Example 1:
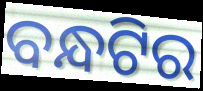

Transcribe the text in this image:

ବନ୍ଧଟିର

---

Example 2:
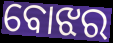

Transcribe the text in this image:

ବୋଝର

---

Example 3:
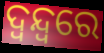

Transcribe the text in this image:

ଦ୍ୱନ୍ଦ୍ବରେ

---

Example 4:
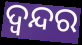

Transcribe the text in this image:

ଦ୍ବନ୍ଦର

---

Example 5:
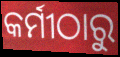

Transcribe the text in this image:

କର୍ମୀଠାରୁ